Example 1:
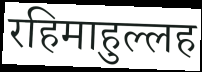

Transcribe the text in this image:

रहिमाहुल्लह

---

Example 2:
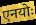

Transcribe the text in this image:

एनयोः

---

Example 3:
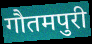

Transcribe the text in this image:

गौतमपुरी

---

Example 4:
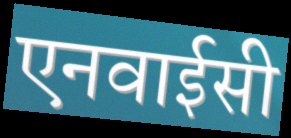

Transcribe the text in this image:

एनवाईसी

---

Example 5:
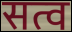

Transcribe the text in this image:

सत्व